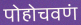
पोहोचवणं